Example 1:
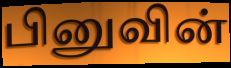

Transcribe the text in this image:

பினுவின்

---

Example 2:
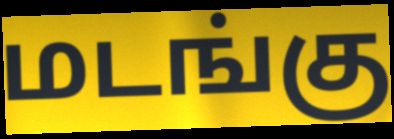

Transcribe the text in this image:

மடங்கு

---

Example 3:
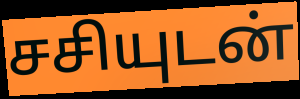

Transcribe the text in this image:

சசியுடன்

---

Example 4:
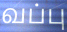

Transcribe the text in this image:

வப்பு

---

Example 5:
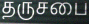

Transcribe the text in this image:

தருசபை